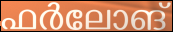
ഫർലോങ്